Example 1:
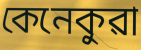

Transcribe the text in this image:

কেনেকুৱা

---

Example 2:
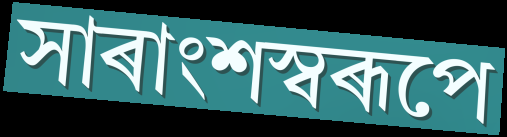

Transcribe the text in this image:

সাৰাংশস্বৰূপে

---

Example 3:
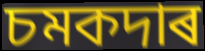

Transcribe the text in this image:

চমকদাৰ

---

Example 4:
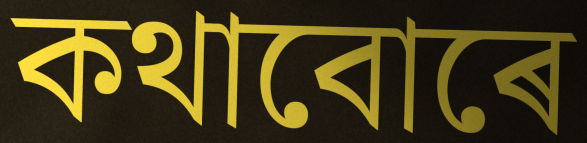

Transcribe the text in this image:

কথাবোৰে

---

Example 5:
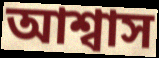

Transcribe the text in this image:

আশ্বাস